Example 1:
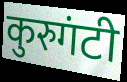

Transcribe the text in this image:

कुरुगंटी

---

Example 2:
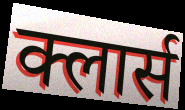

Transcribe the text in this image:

क्लार्स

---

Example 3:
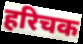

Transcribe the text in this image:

हरिचक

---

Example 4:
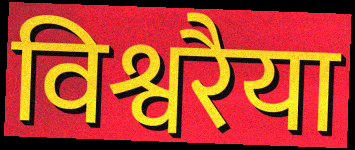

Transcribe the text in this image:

विश्वरैया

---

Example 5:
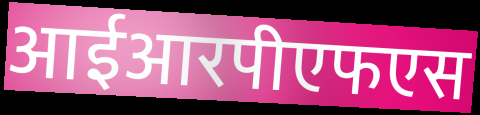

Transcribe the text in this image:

आईआरपीएफएस